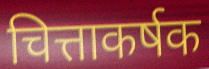
चित्ताकर्षक